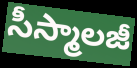
సీస్మాలజీ